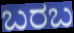
ಬರಬ